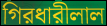
গিরধারীলাল